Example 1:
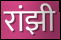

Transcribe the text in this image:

रांझी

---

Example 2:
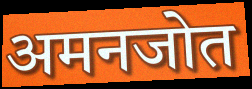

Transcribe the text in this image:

अमनजोत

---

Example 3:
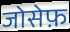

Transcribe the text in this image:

जोसेफ़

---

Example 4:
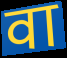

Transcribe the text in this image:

वा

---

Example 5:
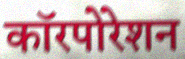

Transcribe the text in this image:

कॉरपोरेशन